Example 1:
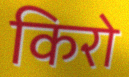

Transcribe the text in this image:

किरो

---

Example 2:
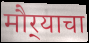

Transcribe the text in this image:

मौर्याचा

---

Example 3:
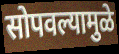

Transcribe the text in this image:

सोपवल्यामुळे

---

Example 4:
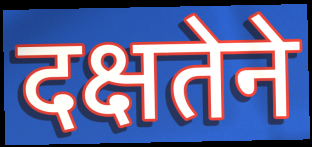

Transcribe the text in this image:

दक्षतेने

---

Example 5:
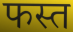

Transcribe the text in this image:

फस्त